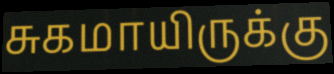
சுகமாயிருக்கு